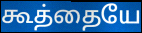
கூத்தையே